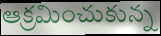
ఆక్రమించుకున్న